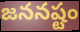
జననష్టం